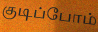
குடிப்போம்